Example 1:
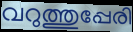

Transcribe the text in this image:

വറുത്തുപ്പേരി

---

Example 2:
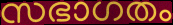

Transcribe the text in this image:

സഭാഗതം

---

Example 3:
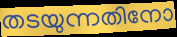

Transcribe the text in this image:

തടയുന്നതിനോ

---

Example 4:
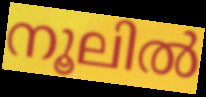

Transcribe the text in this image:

നൂലിൽ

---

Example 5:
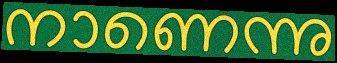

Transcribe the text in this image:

നാണെന്നു